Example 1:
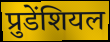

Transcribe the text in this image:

प्रुडेंशियल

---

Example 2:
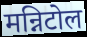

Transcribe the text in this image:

मन्निटोल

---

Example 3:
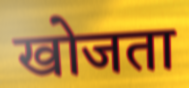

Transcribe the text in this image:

खोजता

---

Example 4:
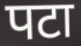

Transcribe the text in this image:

पटा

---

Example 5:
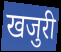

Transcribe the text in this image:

खजुरी